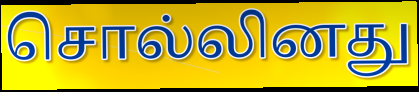
சொல்லினது